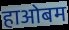
हाओबम